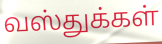
வஸ்துக்கள்